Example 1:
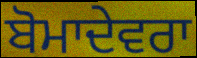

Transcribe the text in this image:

ਬੋਮਾਦੇਵਰਾ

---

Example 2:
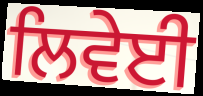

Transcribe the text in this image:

ਲਿਵੇਈ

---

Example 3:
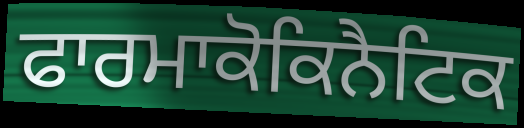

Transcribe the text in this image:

ਫਾਰਮਾਕੋਕਿਨੈਟਿਕ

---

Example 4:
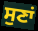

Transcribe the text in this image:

ਸੁਣਾਂ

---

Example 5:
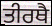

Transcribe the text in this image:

ਤੀਰਥੈ